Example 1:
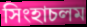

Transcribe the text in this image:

সিংহাচলম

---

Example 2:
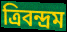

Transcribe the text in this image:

ত্রিবন্দ্রম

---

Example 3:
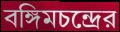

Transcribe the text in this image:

বঙ্গিমচন্দ্রের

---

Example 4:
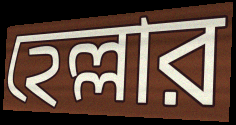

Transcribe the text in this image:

হেল্লার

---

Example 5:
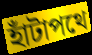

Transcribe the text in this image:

হাঁটাপথে